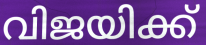
വിജയിക്ക്